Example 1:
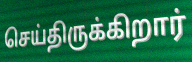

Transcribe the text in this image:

செய்திருக்கிறார்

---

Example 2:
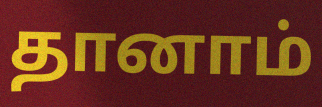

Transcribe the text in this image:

தானாம்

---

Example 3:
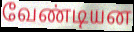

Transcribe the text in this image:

வேண்டியன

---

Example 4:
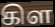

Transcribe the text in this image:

கிள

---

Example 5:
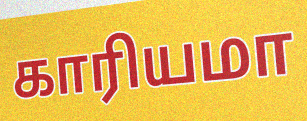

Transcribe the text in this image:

காரியமா